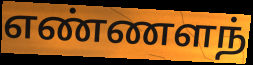
எண்ணளந்